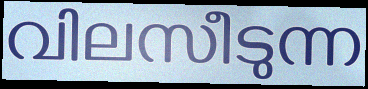
വിലസീടുന്ന